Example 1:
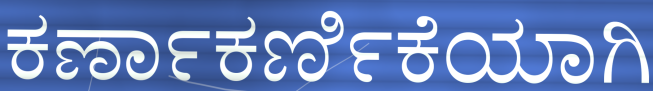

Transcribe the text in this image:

ಕರ್ಣಾಕರ್ಣಿಕೆಯಾಗಿ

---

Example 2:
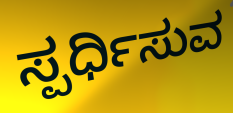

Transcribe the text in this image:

ಸ್ಪರ್ಧಿಸುವ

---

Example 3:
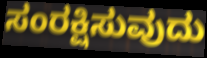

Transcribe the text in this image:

ಸಂರಕ್ಷಿಸುವುದು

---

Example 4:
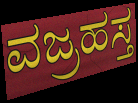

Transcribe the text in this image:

ವಜ್ರಹಸ್ತ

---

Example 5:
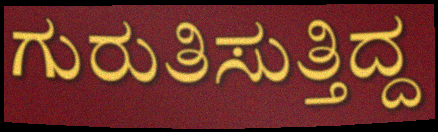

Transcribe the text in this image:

ಗುರುತಿಸುತ್ತಿದ್ದ